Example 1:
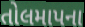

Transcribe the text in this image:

તોલમાપના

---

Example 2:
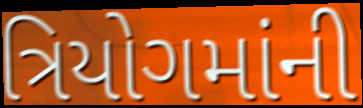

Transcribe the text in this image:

ત્રિયોગમાંની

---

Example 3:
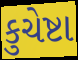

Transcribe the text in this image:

કુચેષ્ટા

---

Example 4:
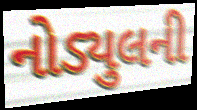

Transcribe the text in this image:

નોડ્યુલની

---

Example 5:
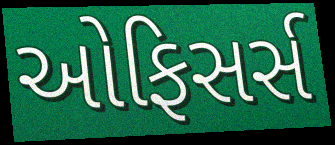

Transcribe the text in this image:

ઓફિસર્સ